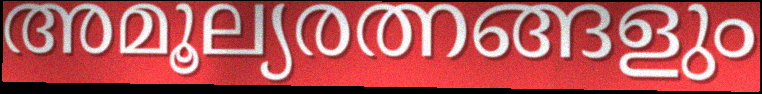
അമൂല്യരത്നങ്ങളും